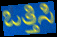
ಒತ್ತಿಸಿ